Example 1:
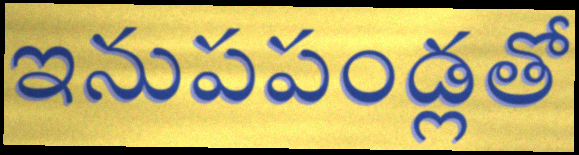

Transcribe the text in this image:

ఇనుపపండ్లతో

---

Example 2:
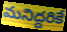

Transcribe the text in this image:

మనిద్దరికే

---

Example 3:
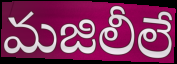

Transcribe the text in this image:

మజిలీలే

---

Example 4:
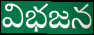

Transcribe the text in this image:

విభజన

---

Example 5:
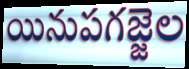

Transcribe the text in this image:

యినుపగజ్జెల